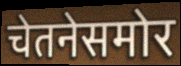
चेतनेसमोर